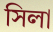
সিলা